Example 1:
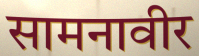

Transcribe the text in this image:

सामनावीर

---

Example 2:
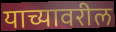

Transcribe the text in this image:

याच्यावरील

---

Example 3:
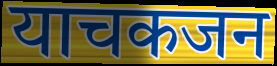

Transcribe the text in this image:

याचकजन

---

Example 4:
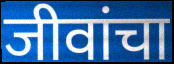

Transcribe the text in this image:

जीवांचा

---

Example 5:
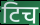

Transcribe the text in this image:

टिच